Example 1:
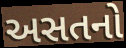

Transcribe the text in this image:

અસતનો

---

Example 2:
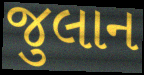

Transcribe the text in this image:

જુલાન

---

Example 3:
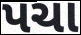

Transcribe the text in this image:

પચા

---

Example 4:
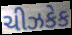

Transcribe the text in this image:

ચીઝકેક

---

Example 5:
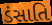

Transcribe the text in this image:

ડંસાતિ